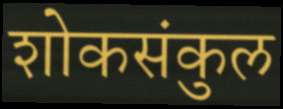
शोकसंकुल